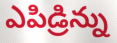
ఎపిడ్రిన్ను